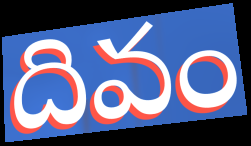
దివం